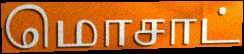
மொசாட்